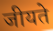
जीयते